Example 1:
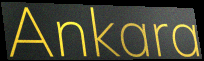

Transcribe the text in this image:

Ankara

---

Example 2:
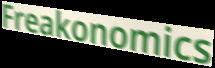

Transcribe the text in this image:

Freakonomics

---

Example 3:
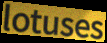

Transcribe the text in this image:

lotuses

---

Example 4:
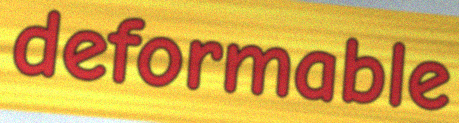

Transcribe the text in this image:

deformable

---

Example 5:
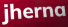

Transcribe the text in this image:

jherna